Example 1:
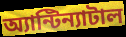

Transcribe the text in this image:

অ্যান্টিন্যাটাল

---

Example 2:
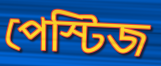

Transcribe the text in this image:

পেস্টিজ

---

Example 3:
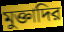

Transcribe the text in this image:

মুক্তাদির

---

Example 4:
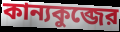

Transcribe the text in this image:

কান্যকুব্জের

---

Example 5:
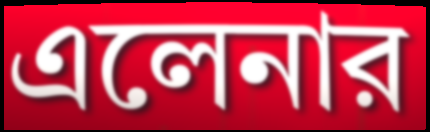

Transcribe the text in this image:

এলেনার